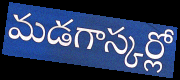
మడగాస్కర్లో